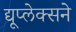
द्यूप्लेक्सने